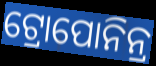
ଟ୍ରୋପୋନିନ୍ର